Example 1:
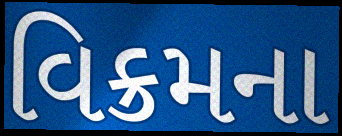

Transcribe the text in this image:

વિક્રમના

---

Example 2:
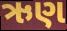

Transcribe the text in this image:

ઋણ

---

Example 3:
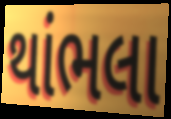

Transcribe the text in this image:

થાંભલા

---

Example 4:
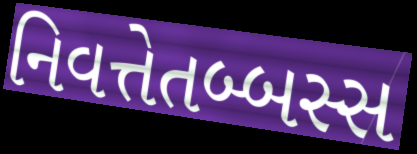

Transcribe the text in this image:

નિવત્તેતબ્બસ્સ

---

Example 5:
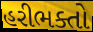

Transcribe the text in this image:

હરીભક્તો